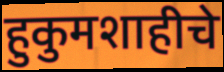
हुकुमशाहीचे